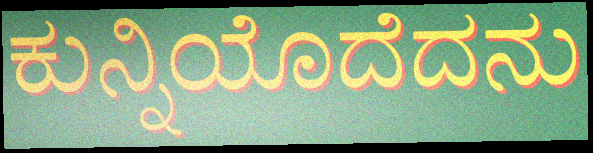
ಕುನ್ನಿಯೊದೆದನು